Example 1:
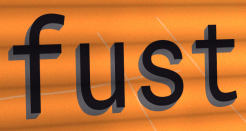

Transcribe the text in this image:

fust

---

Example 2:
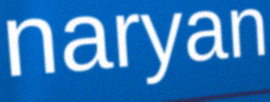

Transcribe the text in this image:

naryan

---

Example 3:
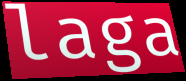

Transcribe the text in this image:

laga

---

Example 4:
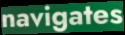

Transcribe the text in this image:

navigates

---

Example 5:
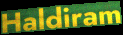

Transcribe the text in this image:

Haldiram